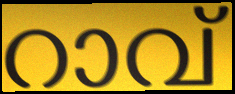
റാവ്